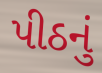
પીઠનું